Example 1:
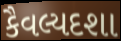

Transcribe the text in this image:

કૈવલ્યદશા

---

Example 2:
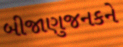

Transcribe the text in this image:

બીજાણુજનકને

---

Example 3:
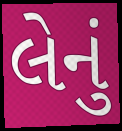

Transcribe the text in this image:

લેનું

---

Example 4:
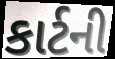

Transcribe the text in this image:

કાર્ટની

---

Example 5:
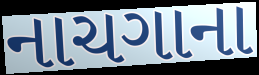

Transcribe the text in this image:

નાચગાના